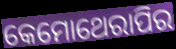
କେମୋଥେରାପିର